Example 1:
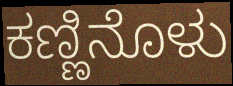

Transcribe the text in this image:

ಕಣ್ಣಿನೊಳು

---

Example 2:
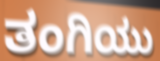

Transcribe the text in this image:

ತಂಗಿಯು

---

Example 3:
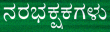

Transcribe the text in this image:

ನರಭಕ್ಷಕಗಳು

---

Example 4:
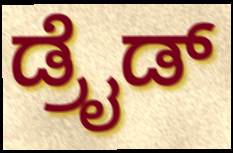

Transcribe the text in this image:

ಡ್ರೈಡ್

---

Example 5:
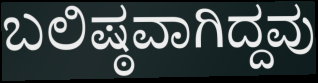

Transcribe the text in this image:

ಬಲಿಷ್ಠವಾಗಿದ್ದವು